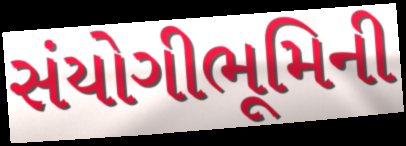
સંયોગીભૂમિની